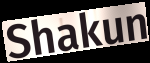
Shakun